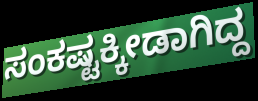
ಸಂಕಷ್ಟಕ್ಕೀಡಾಗಿದ್ದ